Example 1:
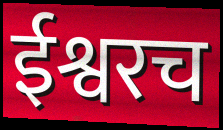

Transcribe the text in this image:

ईश्वरच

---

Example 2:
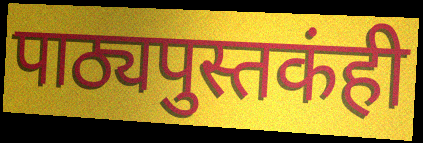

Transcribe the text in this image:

पाठ्यपुस्तकंही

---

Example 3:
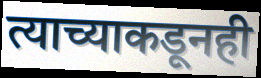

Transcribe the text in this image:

त्याच्याकडूनही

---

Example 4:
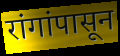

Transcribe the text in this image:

रांगांपासून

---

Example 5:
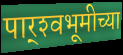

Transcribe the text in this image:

पार्श्वभूमीच्या